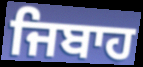
ਜਿਬਾਹ